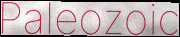
Paleozoic